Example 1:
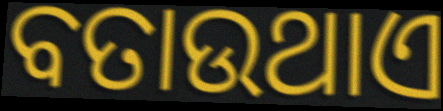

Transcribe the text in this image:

ବତାଉଥାଏ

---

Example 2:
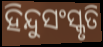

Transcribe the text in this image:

ହିନ୍ଦୁସଂସ୍କୃତି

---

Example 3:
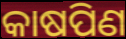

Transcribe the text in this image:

କାଷପିଣ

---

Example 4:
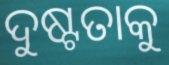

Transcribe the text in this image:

ଦୁଷ୍ଟତାକୁ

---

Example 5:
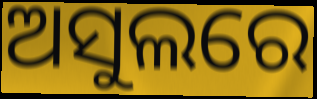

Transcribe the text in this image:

ଅସୁଲରେ